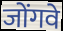
जोंगवे